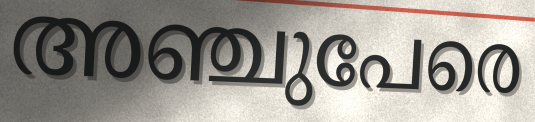
അഞ്ചുപേരെ